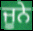
ਜੂਨੇ